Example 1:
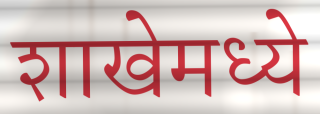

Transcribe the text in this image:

शाखेमध्ये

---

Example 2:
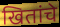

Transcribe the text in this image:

खितांचे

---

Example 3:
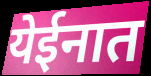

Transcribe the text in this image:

येईनात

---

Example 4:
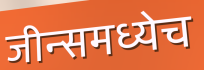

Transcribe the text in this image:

जीन्समध्येच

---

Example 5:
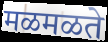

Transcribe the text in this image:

मळमळते